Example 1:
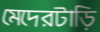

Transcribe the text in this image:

মেদেরটাড়ি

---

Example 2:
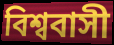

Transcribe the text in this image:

বিশ্ববাসী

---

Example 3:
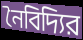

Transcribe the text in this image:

নৈবিদ্যির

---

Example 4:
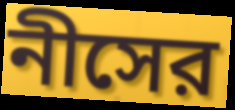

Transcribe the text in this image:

নীসের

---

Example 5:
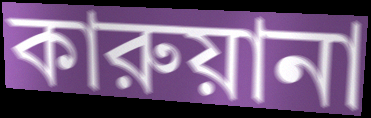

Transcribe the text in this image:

কারুয়ানা